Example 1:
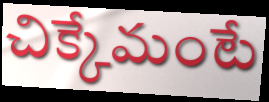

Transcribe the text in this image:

చిక్కేమంటే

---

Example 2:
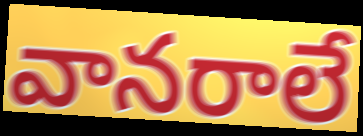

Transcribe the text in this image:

వానరాలే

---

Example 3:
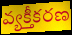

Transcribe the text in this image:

వ్యక్తీకరణ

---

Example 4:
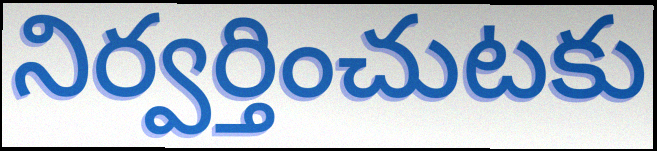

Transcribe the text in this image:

నిర్వర్తించుటకు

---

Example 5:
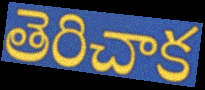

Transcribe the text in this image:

తెరిచాక